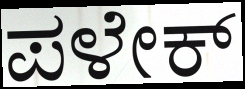
ಪಳೇಕ್